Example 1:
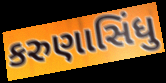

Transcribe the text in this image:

કરુણાસિંધુ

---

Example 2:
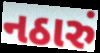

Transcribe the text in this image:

નઠારું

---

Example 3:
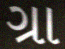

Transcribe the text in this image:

ગ્રા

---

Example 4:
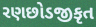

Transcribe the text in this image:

રણછોડજીકૃત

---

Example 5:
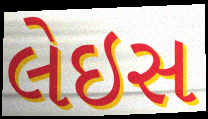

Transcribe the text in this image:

લેઇસ